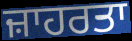
ਜ਼ਾਹਰਤਾ